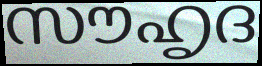
സൗഹൃദ